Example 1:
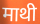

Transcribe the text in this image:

माथी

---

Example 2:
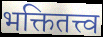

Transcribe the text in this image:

भक्तितत्त्व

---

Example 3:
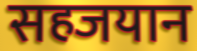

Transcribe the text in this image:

सहजयान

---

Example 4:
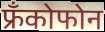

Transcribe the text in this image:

फ्रँकोफोन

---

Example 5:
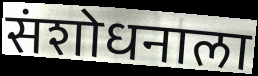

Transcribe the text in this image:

संशोधनाला